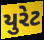
યુરેટ